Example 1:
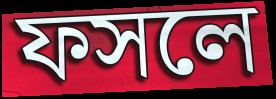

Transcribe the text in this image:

ফসলে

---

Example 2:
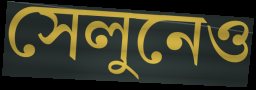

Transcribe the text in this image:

সেলুনেও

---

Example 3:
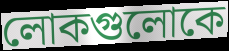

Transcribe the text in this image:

লোকগুলোকে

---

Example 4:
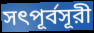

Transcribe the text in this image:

সৎপূর্বসূরী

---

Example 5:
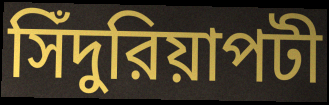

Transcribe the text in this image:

সিঁদুরিয়াপটী